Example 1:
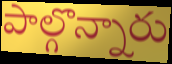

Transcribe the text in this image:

పాల్గొన్నారు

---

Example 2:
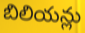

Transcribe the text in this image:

బిలియన్లు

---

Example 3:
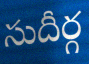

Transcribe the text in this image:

సుదీర్గ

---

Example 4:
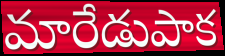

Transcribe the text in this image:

మారేడుపాక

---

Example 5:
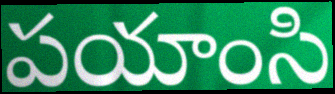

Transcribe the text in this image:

పయాంసి